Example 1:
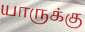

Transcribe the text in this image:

யாருக்கு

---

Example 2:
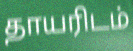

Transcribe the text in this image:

தாயரிடம்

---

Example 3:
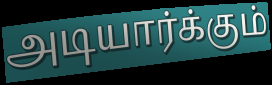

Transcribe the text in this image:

அடியார்க்கும்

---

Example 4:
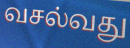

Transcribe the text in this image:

வசல்வது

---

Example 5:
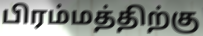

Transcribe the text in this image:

பிரம்மத்திற்கு